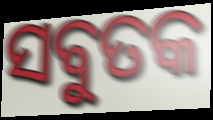
ସବୁତକ